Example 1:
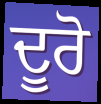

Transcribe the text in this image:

ਦੂਰੋ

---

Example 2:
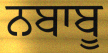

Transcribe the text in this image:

ਨਬਾਬੂ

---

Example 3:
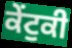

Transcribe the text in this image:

ਕੇਂਟੁਕੀ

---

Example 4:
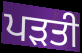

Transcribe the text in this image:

ਪੜਤੀ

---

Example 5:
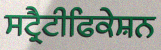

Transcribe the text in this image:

ਸਟ੍ਰੈਟੀਫਿਕੇਸ਼ਨ